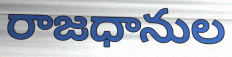
రాజధానుల